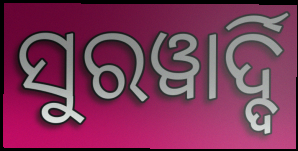
ସୁରୱାର୍ଦ୍ଦି